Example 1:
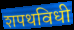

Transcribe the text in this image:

शपथविधी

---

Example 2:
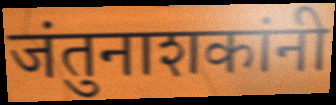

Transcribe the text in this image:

जंतुनाशकांनी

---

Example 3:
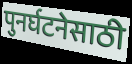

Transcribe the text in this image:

पुनर्घटनेसाठी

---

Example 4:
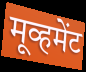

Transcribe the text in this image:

मूव्हमेंट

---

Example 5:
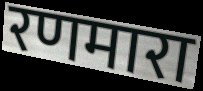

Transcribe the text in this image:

रणमारा